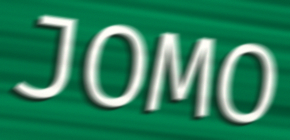
JOMO